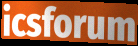
icsforum